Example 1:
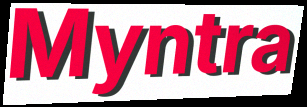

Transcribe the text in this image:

Myntra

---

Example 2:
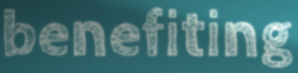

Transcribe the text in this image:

benefiting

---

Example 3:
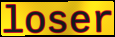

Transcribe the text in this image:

loser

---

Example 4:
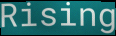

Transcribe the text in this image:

Rising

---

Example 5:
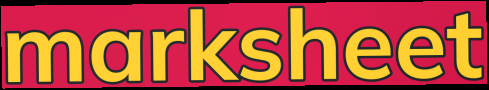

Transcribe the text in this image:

marksheet